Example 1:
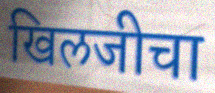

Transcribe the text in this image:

खिलजीचा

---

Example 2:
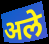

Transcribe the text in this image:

अले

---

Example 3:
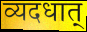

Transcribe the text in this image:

व्यदधात्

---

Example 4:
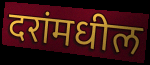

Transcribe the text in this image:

दरांमधील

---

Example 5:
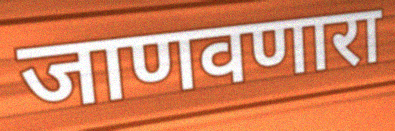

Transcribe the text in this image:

जाणवणारा